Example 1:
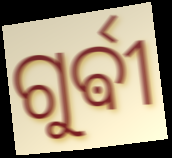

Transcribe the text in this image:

ଗୁର୍ଵୀ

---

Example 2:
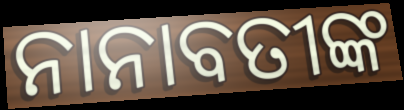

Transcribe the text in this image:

ନାନାବତୀଙ୍କ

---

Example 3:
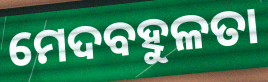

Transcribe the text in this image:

ମେଦବହୁଳତା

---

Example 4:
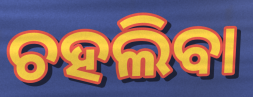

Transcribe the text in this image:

ଚହଲିବା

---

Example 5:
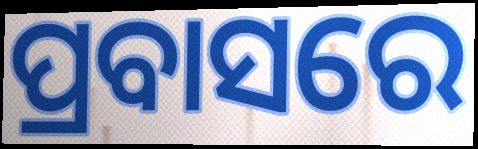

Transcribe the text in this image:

ପ୍ରବାସରେ